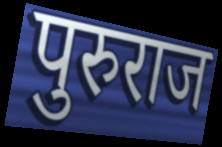
पुरुराज